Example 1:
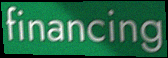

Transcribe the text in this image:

financing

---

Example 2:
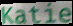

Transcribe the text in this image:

Katie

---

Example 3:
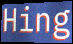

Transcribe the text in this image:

Hing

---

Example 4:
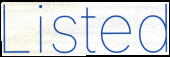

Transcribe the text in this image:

Listed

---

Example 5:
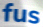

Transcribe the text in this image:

fus